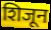
शिजून